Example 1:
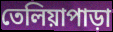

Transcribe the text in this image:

তেলিয়াপাড়া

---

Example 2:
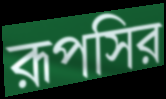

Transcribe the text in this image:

রূপসির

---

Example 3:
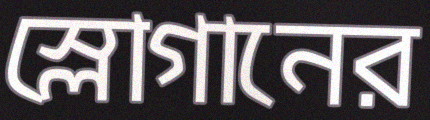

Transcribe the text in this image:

স্লোগানের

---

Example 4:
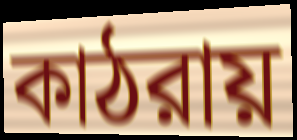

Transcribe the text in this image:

কাঠরায়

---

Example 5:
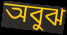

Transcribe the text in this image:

অবুঝ